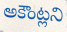
అకౌంట్లని